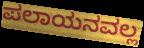
ಪಲಾಯನವಲ್ಲ